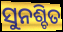
ସୁନଶ୍ଚିତ